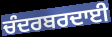
ਚੰਦਰਬਰਦਾਈ